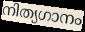
നിത്യഗാനം